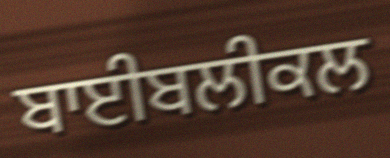
ਬਾਈਬਲੀਕਲ